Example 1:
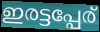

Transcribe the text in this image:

ഇരട്ടപ്പേര്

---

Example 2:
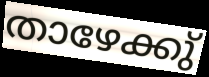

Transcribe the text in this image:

താഴേക്കു്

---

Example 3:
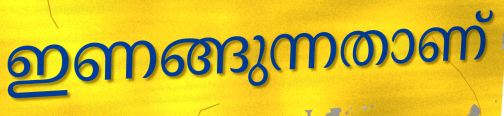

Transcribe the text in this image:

ഇണങ്ങുന്നതാണ്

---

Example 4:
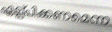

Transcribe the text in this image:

ഏല്പ്പിക്കണമെന്ന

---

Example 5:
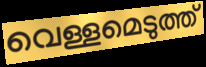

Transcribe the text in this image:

വെള്ളമെടുത്ത്